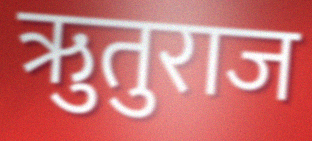
ऋुतुराज